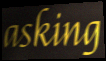
asking